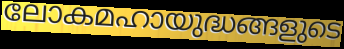
ലോകമഹായുദ്ധങ്ങളുടെ